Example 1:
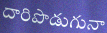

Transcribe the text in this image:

దారిపొడుగునా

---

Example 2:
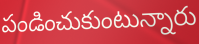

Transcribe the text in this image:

పండించుకుంటున్నారు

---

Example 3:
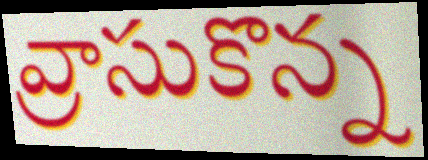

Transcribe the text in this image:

వ్రాసుకొన్న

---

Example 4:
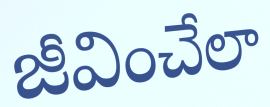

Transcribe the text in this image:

జీవించేలా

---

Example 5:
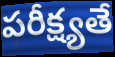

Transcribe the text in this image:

పరీక్ష్యతే